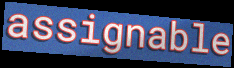
assignable